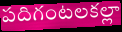
పదిగంటలకల్లా